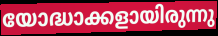
യോദ്ധാക്കളായിരുന്നു